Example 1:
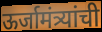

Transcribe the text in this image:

ऊर्जामंत्र्यांची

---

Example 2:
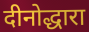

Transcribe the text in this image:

दीनोद्धारा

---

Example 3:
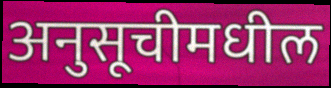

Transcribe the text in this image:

अनुसूचीमधील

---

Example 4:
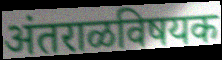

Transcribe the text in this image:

अंतराळविषयक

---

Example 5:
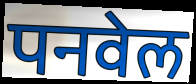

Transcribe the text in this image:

पनवेल